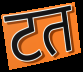
टत